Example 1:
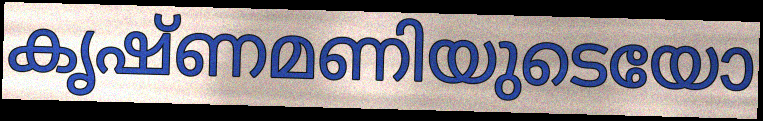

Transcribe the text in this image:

കൃഷ്ണമണിയുടെയോ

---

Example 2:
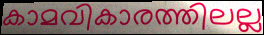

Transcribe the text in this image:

കാമവികാരത്തിലല്ല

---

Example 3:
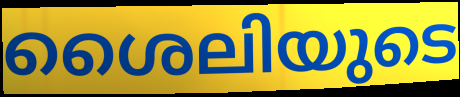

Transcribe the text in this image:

ശൈലിയുടെ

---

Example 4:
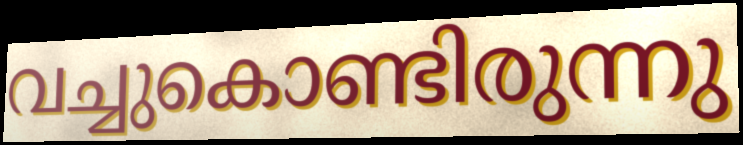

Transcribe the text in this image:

വച്ചുകൊണ്ടിരുന്നു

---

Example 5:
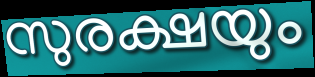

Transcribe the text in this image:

സുരക്ഷയും